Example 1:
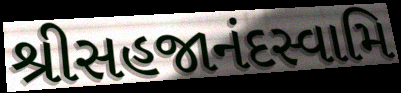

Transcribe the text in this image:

શ્રીસહજાનંદસ્વામિ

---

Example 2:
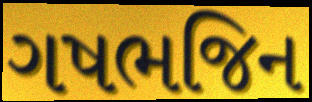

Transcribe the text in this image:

ગષભજિન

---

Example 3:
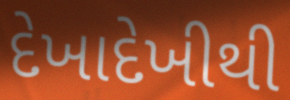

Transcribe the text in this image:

દેખાદેખીથી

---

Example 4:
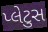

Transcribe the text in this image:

પ્લેટુસ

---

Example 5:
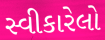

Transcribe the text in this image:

સ્વીકારેલો